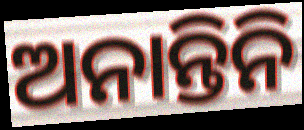
ଅନାନ୍ତିନି